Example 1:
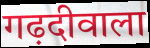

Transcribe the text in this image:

गढ़दीवाला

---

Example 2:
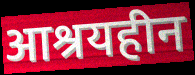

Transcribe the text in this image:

आश्रयहीन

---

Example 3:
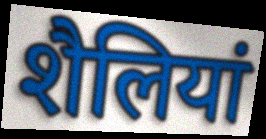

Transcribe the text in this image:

शैलियां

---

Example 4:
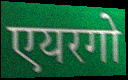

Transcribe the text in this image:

एयरगो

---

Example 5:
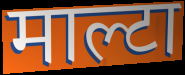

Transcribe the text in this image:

माल्टा